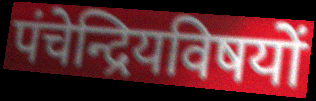
पंचेन्द्रियविषयों